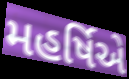
મહર્ષિએ